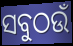
ସବୁଠଉଁ